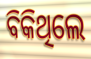
ବିକିଥିଲେ